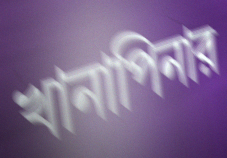
খানাপিনার